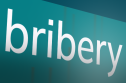
bribery